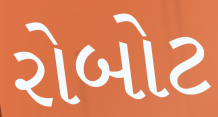
રોબોટ